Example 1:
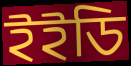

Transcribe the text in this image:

ইইডি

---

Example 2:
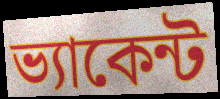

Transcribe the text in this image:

ভ্যাকেন্ট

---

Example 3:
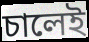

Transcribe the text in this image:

চালেই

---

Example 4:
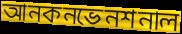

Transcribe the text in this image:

আনকনভেনশনাল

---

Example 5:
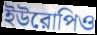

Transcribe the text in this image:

ইউরোপিও